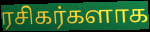
ரசிகர்களாக